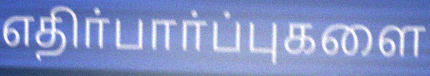
எதிர்பார்ப்புகளை